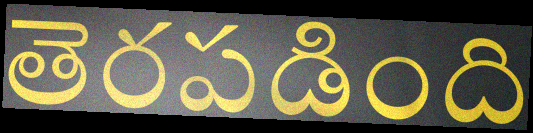
తెరపడింది